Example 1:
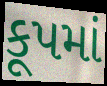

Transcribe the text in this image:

કૂપમાં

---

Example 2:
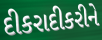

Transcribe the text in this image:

દીકરાદીકરીને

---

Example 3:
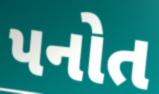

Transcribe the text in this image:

પનોત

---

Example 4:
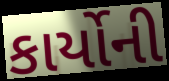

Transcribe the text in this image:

કાર્યોની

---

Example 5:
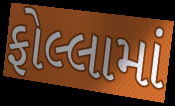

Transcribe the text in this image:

ફોલ્લામાં